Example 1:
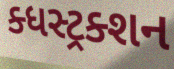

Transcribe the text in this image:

ક્ધસ્ટ્રક્શન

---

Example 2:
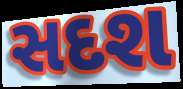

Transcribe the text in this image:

સદશ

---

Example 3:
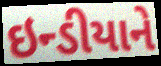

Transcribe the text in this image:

ઇન્ડીયાને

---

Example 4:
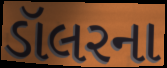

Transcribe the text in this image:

ડૉલરના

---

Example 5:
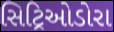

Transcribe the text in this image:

સિટ્રિઓડોરા